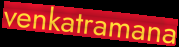
venkatramana